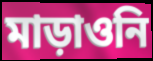
মাড়াওনি